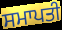
ਸਮਾਪਤੀ